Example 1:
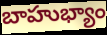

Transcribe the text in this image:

బాహుభ్యాం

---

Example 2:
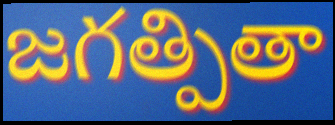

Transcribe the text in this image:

జగత్పితా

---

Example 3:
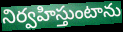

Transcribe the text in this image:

నిర్వహిస్తుంటాను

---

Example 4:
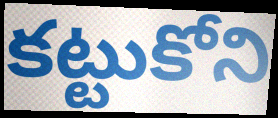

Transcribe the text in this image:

కట్టుకోని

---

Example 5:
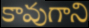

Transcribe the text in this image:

కావుగాని